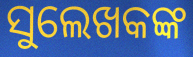
ସୁଲେଖକଙ୍କ